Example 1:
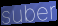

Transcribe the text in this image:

suber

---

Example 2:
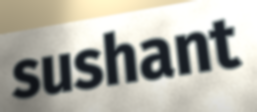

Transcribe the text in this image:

sushant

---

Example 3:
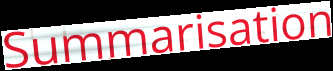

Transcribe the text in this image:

Summarisation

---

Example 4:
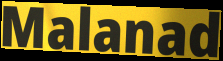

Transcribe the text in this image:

Malanad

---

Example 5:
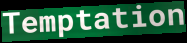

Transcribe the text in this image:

Temptation